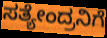
ಸತ್ಯೇಂದ್ರನಿಗೆ